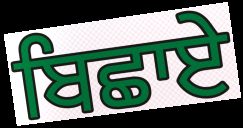
ਬਿਛਾਏ